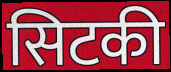
सिटकी